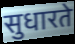
सुधारते